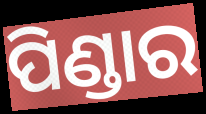
ପିଣ୍ଡାର